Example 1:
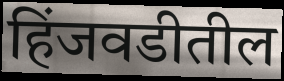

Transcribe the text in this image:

हिंजवडीतील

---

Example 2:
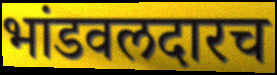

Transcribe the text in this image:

भांडवलदारच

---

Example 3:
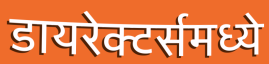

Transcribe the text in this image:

डायरेक्टर्समध्ये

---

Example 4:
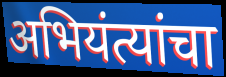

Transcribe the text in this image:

अभियंत्यांचा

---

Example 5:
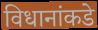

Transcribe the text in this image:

विधानांकडे